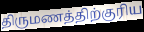
திருமணத்திற்குரிய